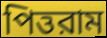
পিত্তরাম